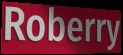
Roberry